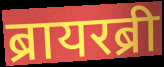
ब्रायरब्री